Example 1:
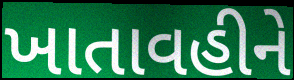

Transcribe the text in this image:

ખાતાવહીને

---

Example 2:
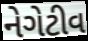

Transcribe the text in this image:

નેગેટીવ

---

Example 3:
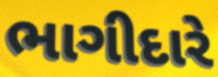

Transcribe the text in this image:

ભાગીદારે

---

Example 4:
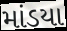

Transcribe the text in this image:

માંડયા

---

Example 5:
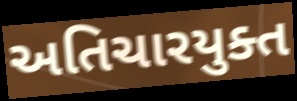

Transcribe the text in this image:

અતિચારયુક્ત